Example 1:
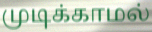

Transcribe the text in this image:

முடிக்காமல்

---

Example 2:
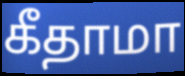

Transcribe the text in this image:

கீதாமா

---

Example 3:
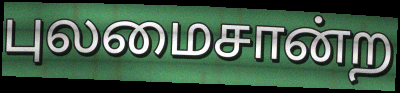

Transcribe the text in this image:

புலமைசான்ற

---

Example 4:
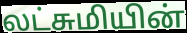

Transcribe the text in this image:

லட்சுமியின்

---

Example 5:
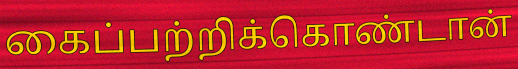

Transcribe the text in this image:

கைப்பற்றிக்கொண்டான்